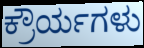
ಕ್ರೌರ್ಯಗಳು